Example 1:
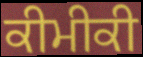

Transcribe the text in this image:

ਕੀਮੀਕੀ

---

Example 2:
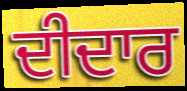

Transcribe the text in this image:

ਦੀਦਾਰ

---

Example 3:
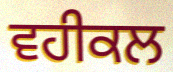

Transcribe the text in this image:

ਵਹੀਕਲ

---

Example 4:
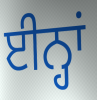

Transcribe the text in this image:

ਈਨ੍ਹਾਂ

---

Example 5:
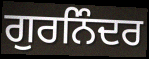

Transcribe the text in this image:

ਗੁਰਨਿੰਦਰ